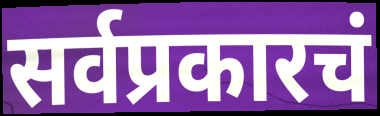
सर्वप्रकारचं